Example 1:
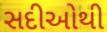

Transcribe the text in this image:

સદીઓથી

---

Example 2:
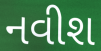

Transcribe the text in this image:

નવીશ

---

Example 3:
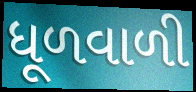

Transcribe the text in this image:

ધૂળવાળી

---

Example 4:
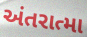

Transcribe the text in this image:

અંતરાત્મા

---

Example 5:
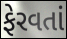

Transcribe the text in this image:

ફેરવતાં